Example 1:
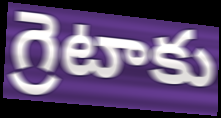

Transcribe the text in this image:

గ్రెటాకు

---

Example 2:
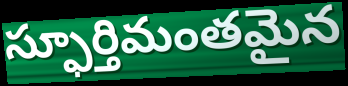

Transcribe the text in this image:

స్ఫూర్తిమంతమైన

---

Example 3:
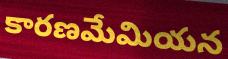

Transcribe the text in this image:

కారణమేమియన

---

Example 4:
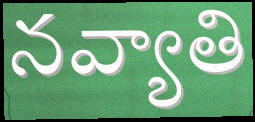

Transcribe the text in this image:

నవ్యాతి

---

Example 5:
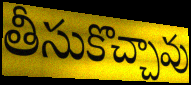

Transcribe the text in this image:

తీసుకొచ్చావు